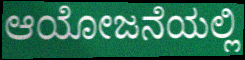
ಆಯೋಜನೆಯಲ್ಲಿ